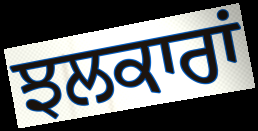
ਝਲਕਾਰਾਂ